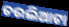
ତଉଲିଆଟା